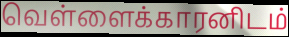
வெள்ளைக்காரனிடம்